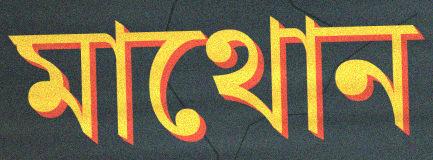
মাথোন